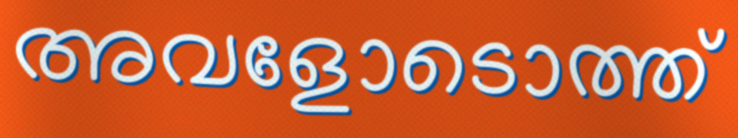
അവളോടൊത്ത്